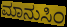
ಮಾನುಸಿಂ